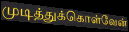
முடித்துக்கொள்வேன்